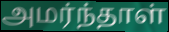
அமர்ந்தாள்